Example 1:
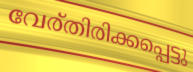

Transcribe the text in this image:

വേര്തിരിക്കപ്പെട്ടു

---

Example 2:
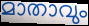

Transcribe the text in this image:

മാതാവും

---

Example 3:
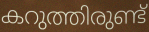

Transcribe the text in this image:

കറുത്തിരുണ്ട്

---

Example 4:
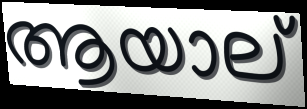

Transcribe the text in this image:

ആയാല്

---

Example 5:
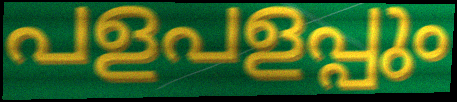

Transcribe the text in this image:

പളപളപ്പും